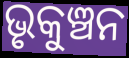
ଭୃକୁଞ୍ଚନ